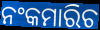
ନଂକମାରିଚ